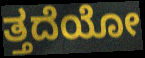
ತ್ತದೆಯೋ